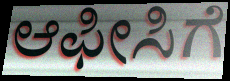
ಆಫೀಸಿಗೆ